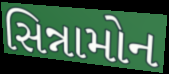
સિન્નામોન